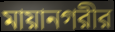
মায়ানগরীর